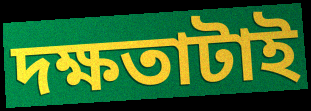
দক্ষতাটাই